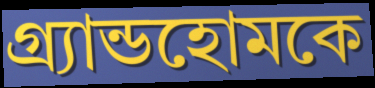
গ্র্যান্ডহোমকে